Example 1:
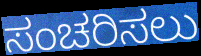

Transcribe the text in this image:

ಸಂಚರಿಸಲು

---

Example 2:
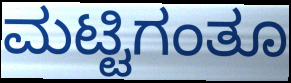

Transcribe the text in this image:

ಮಟ್ಟಿಗಂತೂ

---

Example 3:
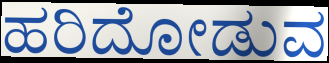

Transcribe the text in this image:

ಹರಿದೋಡುವ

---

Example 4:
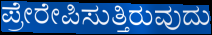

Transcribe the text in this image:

ಪ್ರೇರೇಪಿಸುತ್ತಿರುವುದು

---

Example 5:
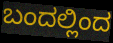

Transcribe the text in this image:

ಬಂದಲ್ಲಿಂದ